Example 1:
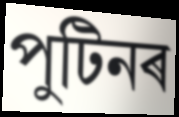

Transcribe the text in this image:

পুটিনৰ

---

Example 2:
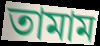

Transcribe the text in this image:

তামাম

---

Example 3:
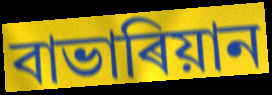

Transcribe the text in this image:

বাভাৰিয়ান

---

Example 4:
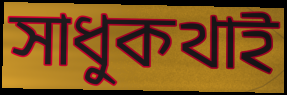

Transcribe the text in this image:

সাধুকথাই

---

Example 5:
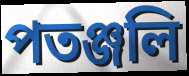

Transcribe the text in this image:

পতঞ্জলি